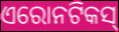
ଏରୋନଟିକସ୍